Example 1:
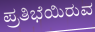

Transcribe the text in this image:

ಪ್ರತಿಭೆಯಿರುವ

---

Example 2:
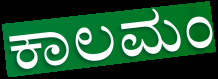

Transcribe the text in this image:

ಕಾಲಮಂ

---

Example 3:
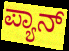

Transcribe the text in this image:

ಪ್ಯಾನ್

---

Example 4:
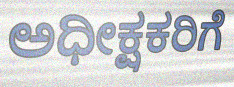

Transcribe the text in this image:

ಅಧೀಕ್ಷಕರಿಗೆ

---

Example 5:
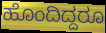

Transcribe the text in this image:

ಹೊಂದಿದ್ದರೂ